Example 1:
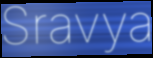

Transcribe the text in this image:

Sravya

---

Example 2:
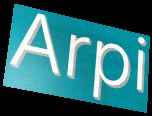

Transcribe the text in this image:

Arpi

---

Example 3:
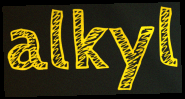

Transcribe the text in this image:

alkyl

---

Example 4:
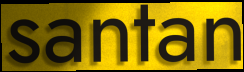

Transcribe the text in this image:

santan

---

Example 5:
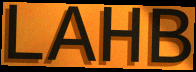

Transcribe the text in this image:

LAHB